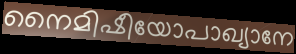
നൈമിഷീയോപാഖ്യാനേ